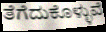
ತೆಗೆದುಕೊಳ್ಳುವೆ